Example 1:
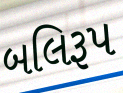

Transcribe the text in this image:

બલિરૂપ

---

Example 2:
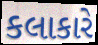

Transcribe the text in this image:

કલાકારે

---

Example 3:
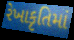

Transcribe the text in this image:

રેખાકૃતિમાં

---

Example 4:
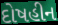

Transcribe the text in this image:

દોષહીન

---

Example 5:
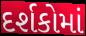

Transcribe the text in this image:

દર્શકોમાં